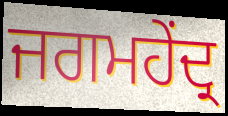
ਜਗਮਹੇਂਦ੍ਰ